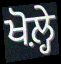
ਖੋਲ਼੍ਹੇ